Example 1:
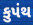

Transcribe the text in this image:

કુપંથ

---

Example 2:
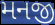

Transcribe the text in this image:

મનજી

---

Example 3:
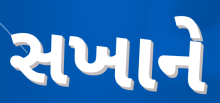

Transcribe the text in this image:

સખાને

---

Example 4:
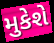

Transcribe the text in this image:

મુકેશે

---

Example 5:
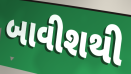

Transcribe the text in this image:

બાવીશથી